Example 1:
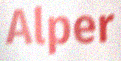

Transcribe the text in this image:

Alper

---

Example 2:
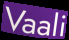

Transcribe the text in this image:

Vaali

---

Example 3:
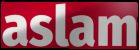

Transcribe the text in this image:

aslam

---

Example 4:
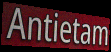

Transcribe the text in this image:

Antietam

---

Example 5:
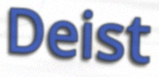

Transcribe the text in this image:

Deist